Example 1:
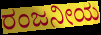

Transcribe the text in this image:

ರಂಜನೀಯ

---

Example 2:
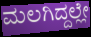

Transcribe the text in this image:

ಮಲಗಿದ್ದಲ್ಲೇ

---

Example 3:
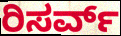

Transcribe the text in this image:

ರಿಸರ್ವ್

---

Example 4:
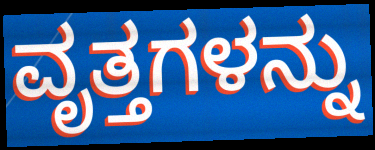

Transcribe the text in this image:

ವೃತ್ತಗಳನ್ನು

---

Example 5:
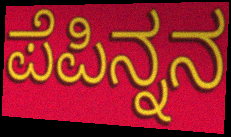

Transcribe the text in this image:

ಪೆಪಿನ್ನನ